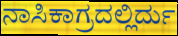
ನಾಸಿಕಾಗ್ರದಲ್ಲಿರ್ದು